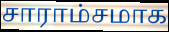
சாராம்சமாக